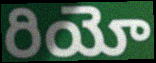
రియో